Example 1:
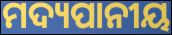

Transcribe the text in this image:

ମଦ୍ୟପାନୀୟ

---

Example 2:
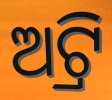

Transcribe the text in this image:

ଅଟ୍ରି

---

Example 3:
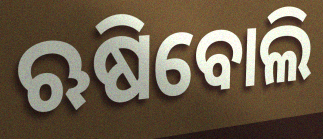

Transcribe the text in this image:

ଋଷିବୋଲି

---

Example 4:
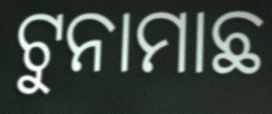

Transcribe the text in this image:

ଟୁନାମାଛ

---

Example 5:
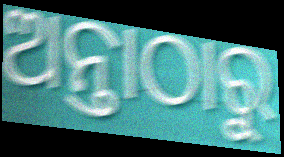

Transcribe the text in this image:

ଅନ୍ତାଠାରୁ